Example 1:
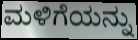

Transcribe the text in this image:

ಮಳಿಗೆಯನ್ನು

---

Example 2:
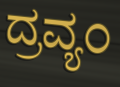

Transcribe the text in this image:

ದ್ರವ್ಯಂ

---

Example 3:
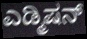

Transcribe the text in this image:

ಎಡ್ಮಿಷನ್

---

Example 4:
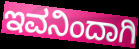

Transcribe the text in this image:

ಇವನಿಂದಾಗಿ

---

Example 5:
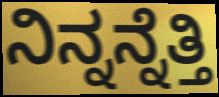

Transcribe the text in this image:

ನಿನ್ನನ್ನೆತ್ತಿ